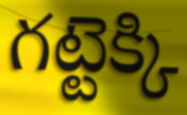
గట్టెక్కి